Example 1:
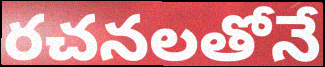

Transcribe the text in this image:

రచనలతోనే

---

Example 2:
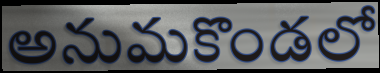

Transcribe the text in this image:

అనుమకొండలో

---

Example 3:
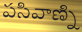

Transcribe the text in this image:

పసివాణ్ని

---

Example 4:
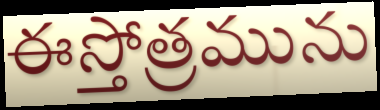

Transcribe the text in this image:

ఈస్తోత్రమును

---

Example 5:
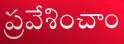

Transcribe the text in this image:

ప్రవేశించాం